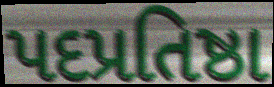
પદપ્રતિષ્ઠા